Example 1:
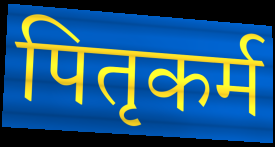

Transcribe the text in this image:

पितृकर्म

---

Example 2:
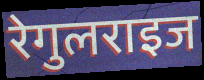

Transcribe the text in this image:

रेगुलराइज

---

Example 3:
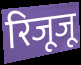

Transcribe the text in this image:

रिजूजू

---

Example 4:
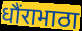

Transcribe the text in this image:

धौंराभाठा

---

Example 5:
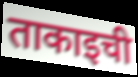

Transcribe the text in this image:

ताकाइची